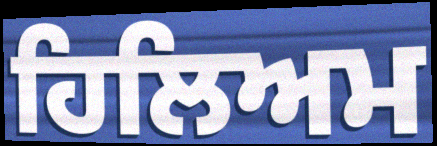
ਹਿਲਿਅਮ